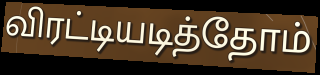
விரட்டியடித்தோம்